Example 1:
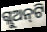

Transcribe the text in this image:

ଗ୍ଲୁଅନ୍‍ଟି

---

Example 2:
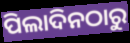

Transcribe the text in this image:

ପିଲାଦିନଠାରୁ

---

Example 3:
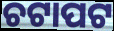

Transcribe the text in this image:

ଚଟାପଟ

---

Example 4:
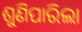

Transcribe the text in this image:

ଶୁଣିପାରିଲା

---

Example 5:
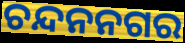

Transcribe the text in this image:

ଚନ୍ଦନନଗର